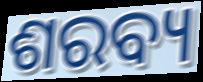
ଶରବ୍ୟ